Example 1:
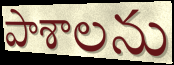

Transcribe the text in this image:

పాశాలను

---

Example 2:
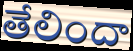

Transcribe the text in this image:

తేలిందా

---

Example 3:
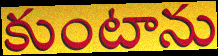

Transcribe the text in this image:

కుంటాను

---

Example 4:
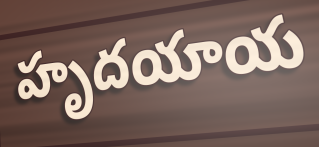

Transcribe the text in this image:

హృదయాయ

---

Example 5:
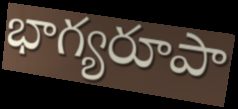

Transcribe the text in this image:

భాగ్యరూపా